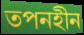
তপনহীন